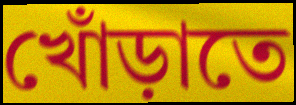
খোঁড়াতে